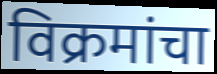
विक्रमांचा